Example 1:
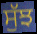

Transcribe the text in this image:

ਸੁੱਝ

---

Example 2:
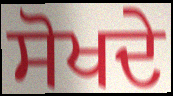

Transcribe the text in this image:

ਸੋਖਦੇ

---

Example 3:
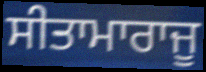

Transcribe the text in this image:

ਸੀਤਾਮਾਰਾਜੂ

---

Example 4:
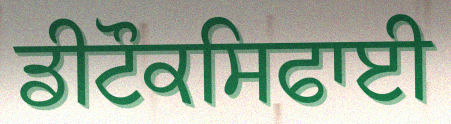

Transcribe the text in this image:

ਡੀਟੌਕਸਿਫਾਈ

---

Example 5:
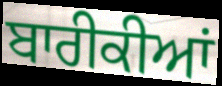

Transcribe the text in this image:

ਬਾਰੀਕੀਆਂ